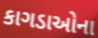
કાગડાઓના